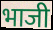
भाजी